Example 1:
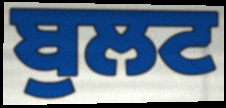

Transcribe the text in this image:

ਬੁਲਟ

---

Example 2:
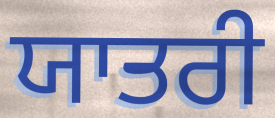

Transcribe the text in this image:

ਯਾਤਰੀ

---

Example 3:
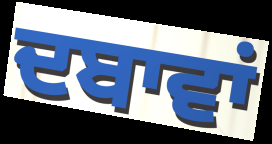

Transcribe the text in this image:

ਦਬਾਵਾਂ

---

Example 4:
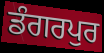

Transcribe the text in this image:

ਡੰਗਰਪੁਰ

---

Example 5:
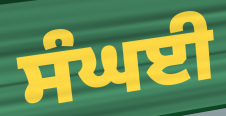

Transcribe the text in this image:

ਸੰਘਈ